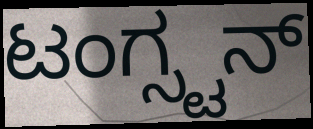
ಟಂಗ್ಸ್ಟನ್